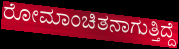
ರೋಮಾಂಚಿತನಾಗುತ್ತಿದ್ದೆ